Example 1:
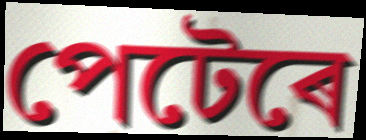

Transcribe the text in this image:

পেটেৰে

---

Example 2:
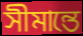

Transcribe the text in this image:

সীমান্তে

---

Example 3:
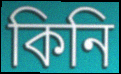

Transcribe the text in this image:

কিনি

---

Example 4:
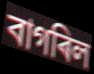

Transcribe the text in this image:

বাগৰিল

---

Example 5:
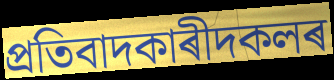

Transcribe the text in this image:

প্ৰতিবাদকাৰীদকলৰ